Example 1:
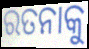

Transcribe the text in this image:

ରତନାକୁ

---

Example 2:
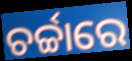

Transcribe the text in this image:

ଚର୍ଚ୍ଚାରେ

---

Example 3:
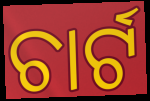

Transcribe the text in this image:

ଚାର୍ଟ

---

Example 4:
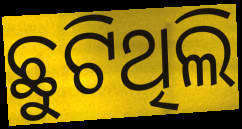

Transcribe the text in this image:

ଛୁଟିଥିଲି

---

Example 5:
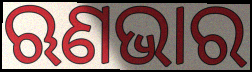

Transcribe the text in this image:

ଋଣଭାର